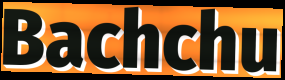
Bachchu